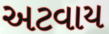
અટવાય